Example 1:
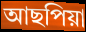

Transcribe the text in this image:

আছপিয়া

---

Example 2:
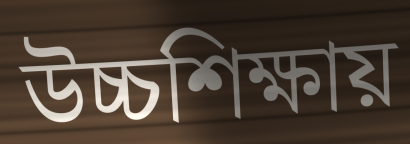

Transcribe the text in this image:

উচ্চশিক্ষায়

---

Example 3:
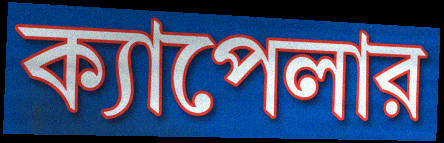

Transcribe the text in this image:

ক্যাপেলার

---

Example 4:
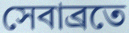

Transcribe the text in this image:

সেবাব্রতে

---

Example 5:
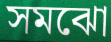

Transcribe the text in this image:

সমঝো